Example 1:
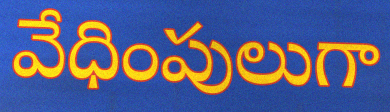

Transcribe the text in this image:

వేధింపులుగా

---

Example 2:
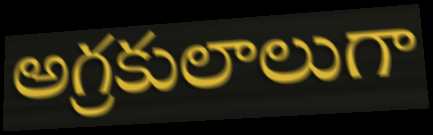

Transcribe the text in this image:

అగ్రకులాలుగా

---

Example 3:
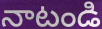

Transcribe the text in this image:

నాటండి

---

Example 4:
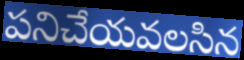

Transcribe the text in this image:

పనిచేయవలసిన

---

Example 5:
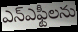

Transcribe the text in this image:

ఎన్ఎఫ్టీలను